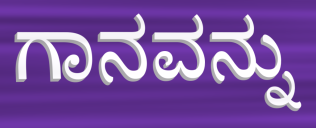
ಗಾನವನ್ನು